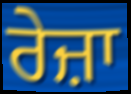
ਰੇਜ਼ਾ